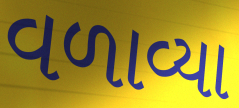
વળાવ્યા